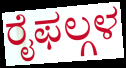
ರೈಫಲ್ಗಳ